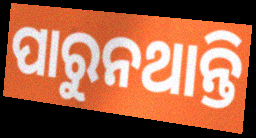
ପାରୁନଥାନ୍ତି